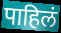
पाहिलं